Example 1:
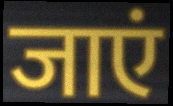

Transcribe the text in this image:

जाएं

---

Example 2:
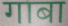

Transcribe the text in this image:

गाबा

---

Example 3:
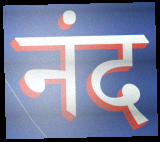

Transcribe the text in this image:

नंद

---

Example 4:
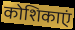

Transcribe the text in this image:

कोशिकाएं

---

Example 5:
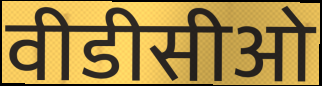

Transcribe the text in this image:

वीडीसीओ